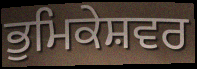
ਭੁਮਿਕੇਸ਼ਵਰ